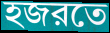
হজরতে